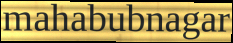
mahabubnagar